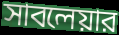
সাবলেয়ার